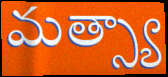
మత్స్యా